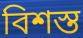
বিশস্ত